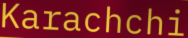
Karachchi